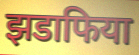
झडाफिया